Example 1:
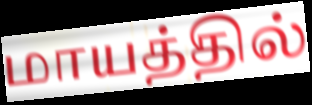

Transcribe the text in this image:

மாயத்தில்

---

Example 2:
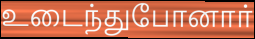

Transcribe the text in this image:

உடைந்துபோனார்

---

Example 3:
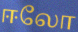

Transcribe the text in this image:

ஈலோ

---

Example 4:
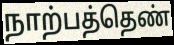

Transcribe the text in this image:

நாற்பத்தெண்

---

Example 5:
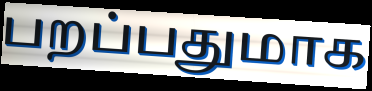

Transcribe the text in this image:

பறப்பதுமாக